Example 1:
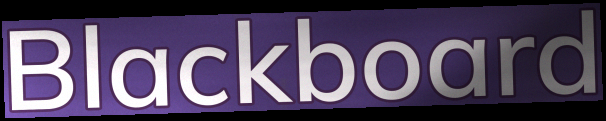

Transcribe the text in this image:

Blackboard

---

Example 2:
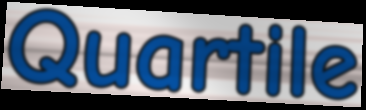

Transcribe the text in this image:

Quartile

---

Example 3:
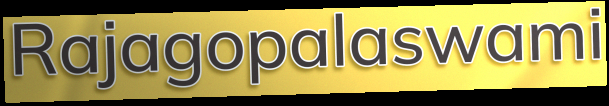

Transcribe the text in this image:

Rajagopalaswami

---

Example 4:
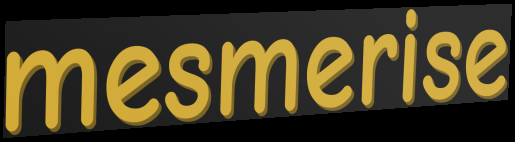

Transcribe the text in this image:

mesmerise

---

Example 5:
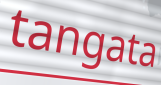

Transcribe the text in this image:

tangata